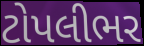
ટોપલીભર